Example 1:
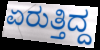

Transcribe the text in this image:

ಏರುತ್ತಿದ್ದ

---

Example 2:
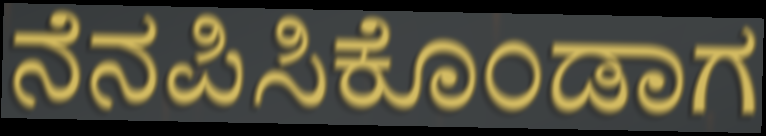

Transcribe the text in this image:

ನೆನಪಿಸಿಕೊಂಡಾಗ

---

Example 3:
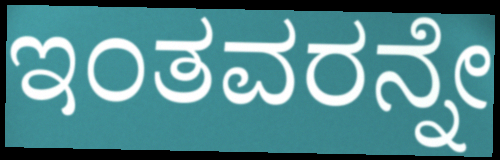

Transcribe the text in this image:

ಇಂತವರನ್ನೇ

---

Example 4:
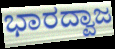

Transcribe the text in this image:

ಭಾರದ್ವಾಜ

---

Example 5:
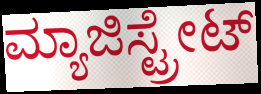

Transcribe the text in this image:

ಮ್ಯಾಜಿಸ್ಟ್ರೇಟ್